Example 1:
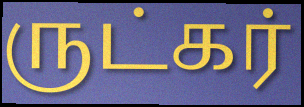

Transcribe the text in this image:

ருட்கர்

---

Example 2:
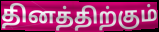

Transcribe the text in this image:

தினத்திற்கும்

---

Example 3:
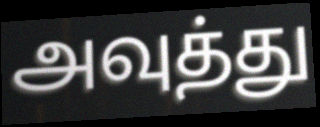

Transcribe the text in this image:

அவுத்து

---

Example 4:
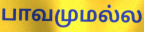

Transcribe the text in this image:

பாவமுமல்ல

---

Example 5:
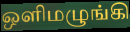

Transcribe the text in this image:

ஒளிமழுங்கி